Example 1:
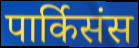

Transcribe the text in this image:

पार्किसंस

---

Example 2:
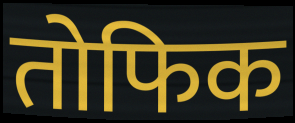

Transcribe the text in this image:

तोफिक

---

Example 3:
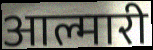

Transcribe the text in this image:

आल्मारी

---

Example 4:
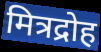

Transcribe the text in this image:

मित्रद्रोह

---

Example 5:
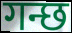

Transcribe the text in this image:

गन्छ